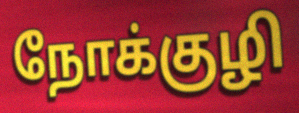
நோக்குழி